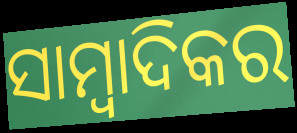
ସାମ୍ବାଦିକର